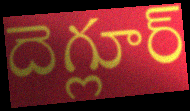
దెగ్లూర్